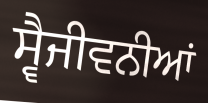
ਸ੍ਵੈਜੀਵਨੀਆਂ